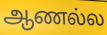
ஆணல்ல